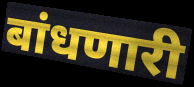
बांधणारी